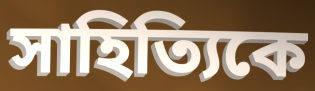
সাহিত্যিকে